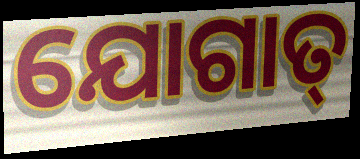
ଯୋଗାତ୍